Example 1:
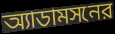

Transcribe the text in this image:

অ্যাডামসনের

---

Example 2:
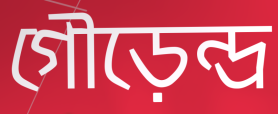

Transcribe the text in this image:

গৌড়েন্দ্র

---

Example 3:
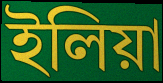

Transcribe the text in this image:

ইলিয়া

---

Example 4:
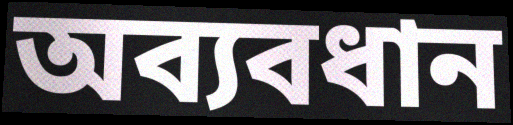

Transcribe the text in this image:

অব্যবধান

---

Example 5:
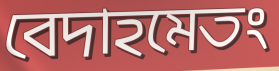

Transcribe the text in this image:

বেদাহমেতং